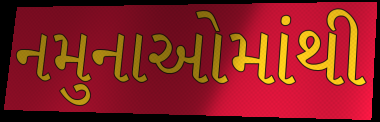
નમુનાઓમાંથી